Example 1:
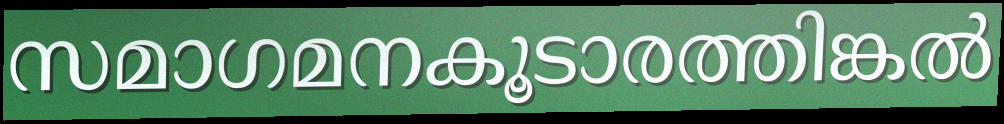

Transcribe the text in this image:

സമാഗമനകൂടാരത്തിങ്കൽ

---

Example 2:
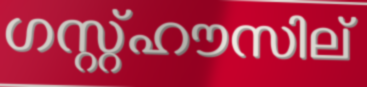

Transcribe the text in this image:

ഗസ്റ്റ്ഹൗസില്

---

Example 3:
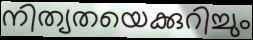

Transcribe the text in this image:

നിത്യതയെക്കുറിച്ചും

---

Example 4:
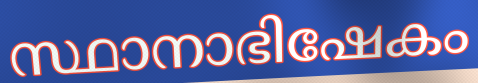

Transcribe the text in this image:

സ്ഥാനാഭിഷേകം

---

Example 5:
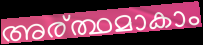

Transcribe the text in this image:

അര്ത്ഥമാകാം